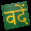
वदें